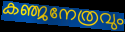
കഞ്ജനേത്രവും